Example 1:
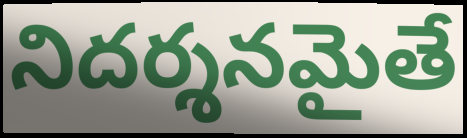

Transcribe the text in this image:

నిదర్శనమైతే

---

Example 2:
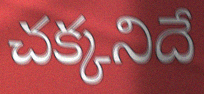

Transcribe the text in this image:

చక్కనిదే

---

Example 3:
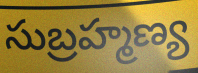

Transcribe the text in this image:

సుబ్రహ్మణ్య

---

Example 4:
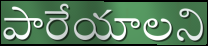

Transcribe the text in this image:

పారేయాలని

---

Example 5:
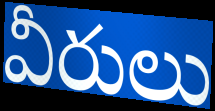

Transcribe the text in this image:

వీరులు